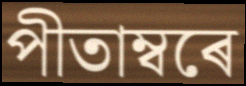
পীতাম্বৰে